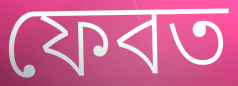
ফেবত